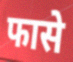
फासे